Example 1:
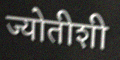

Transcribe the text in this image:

ज्योतीशी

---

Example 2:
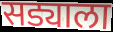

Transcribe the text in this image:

सड्याला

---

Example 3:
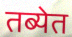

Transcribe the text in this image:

तब्येत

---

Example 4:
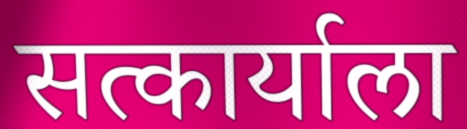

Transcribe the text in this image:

सत्कार्याला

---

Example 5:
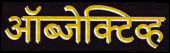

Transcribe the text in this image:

ऑब्जेक्टिव्ह